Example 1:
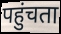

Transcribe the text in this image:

पहुंचता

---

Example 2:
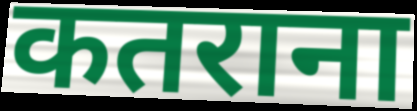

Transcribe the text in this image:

कतराना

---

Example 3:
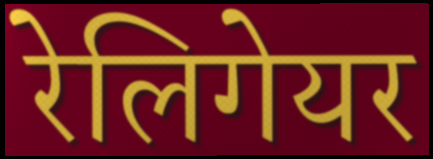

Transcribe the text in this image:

रेलिगेयर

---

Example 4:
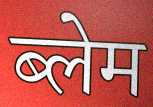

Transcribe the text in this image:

ब्लेम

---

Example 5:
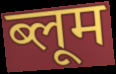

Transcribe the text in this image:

ब्लूम